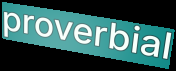
proverbial